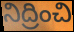
నిద్రించి